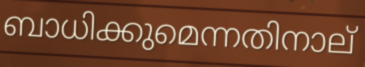
ബാധിക്കുമെന്നതിനാല്